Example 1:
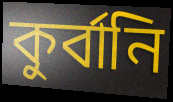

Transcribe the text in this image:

কুর্বানি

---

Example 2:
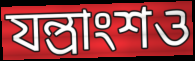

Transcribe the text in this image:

যন্ত্রাংশও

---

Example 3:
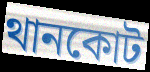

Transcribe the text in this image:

থানকোট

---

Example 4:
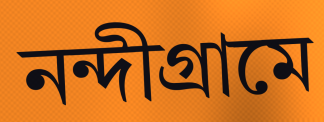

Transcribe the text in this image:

নন্দীগ্রামে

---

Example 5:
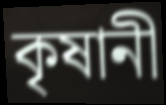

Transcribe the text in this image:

কৃষানী